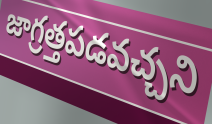
జాగ్రత్తపడవచ్చని